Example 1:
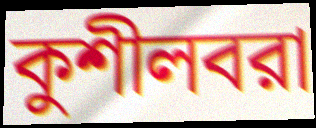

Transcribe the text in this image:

কুশীলবরা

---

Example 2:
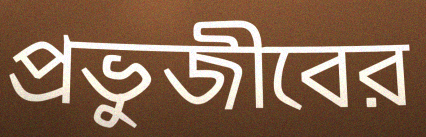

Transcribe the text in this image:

প্রভুজীবের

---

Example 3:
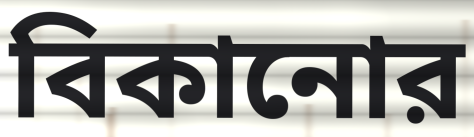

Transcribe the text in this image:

বিকানোর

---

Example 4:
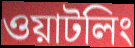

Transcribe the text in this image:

ওয়াটলিং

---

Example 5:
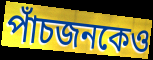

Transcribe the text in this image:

পাঁচজনকেও